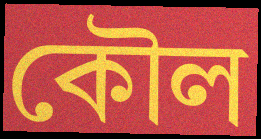
কৌল